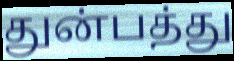
துன்பத்து